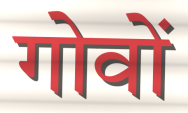
गोवों